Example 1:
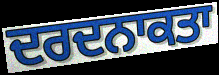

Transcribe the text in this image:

ਦਰਦਨਾਕਤਾ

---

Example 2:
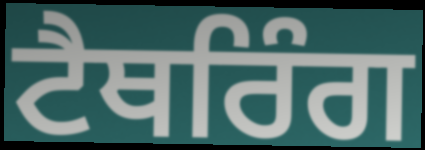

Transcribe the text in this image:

ਟੈਥਰਿੰਗ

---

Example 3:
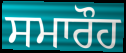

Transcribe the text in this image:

ਸਮਾਰੌਹ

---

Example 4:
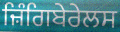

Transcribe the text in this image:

ਜ਼ਿੰਗਿਬੇਰੇਲਸ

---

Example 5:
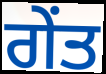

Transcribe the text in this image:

ਗੇਂਤ